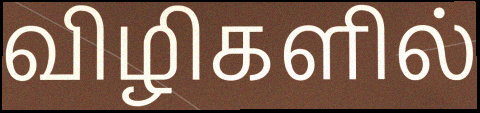
விழிகளில்